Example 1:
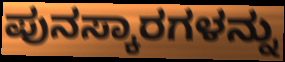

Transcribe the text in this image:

ಪುನಸ್ಕಾರಗಳನ್ನು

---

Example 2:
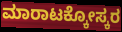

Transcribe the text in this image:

ಮಾರಾಟಕ್ಕೋಸ್ಕರ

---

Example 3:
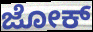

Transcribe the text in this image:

ಜೋಕ್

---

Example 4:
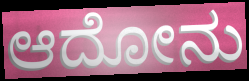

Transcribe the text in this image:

ಆದೋನು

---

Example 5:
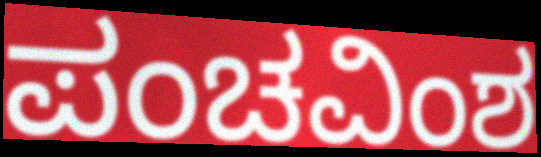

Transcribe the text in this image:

ಪಂಚವಿಂಶ